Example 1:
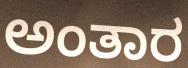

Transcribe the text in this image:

ಅಂತಾರ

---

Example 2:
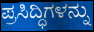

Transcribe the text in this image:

ಪ್ರಸಿದ್ಧಿಗಳನ್ನು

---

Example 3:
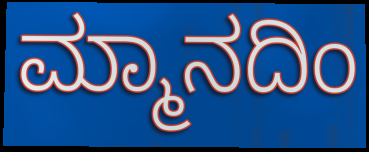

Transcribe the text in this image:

ಮ್ಮಾನದಿಂ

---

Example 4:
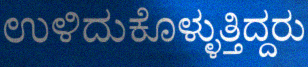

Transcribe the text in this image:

ಉಳಿದುಕೊಳ್ಳುತ್ತಿದ್ದರು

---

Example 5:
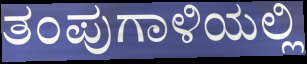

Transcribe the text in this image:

ತಂಪುಗಾಳಿಯಲ್ಲಿ